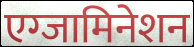
एग्‍जामिनेशन